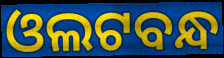
ଓଲଟବନ୍ଧ